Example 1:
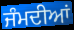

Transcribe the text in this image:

ਜੰਮਦੀਆਂ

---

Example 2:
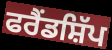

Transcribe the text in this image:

ਫਰੈਂਡਸ਼ਿੱਪ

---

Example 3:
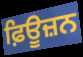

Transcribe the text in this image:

ਫ਼ਿਊਜ਼ਨ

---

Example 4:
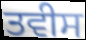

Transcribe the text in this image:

ਤਵੀਸ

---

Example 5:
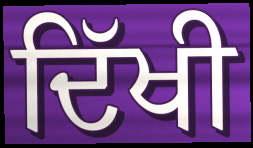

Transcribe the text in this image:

ਦਿੱਖੀ